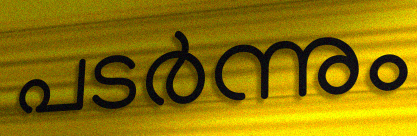
പടർന്നും